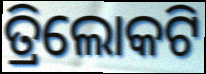
ତ୍ରିଲୋକଟି